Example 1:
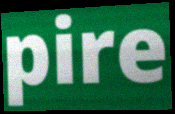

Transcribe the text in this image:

pire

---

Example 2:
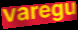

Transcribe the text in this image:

varegu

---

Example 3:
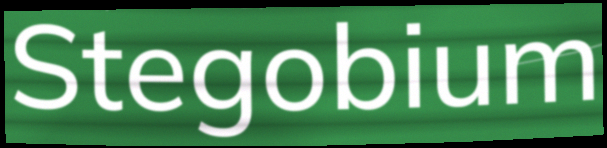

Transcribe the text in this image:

Stegobium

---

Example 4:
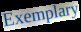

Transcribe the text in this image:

Exemplary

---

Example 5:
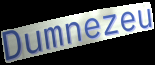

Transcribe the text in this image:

Dumnezeu